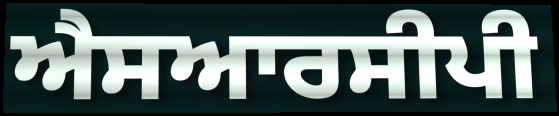
ਐਸਆਰਸੀਪੀ